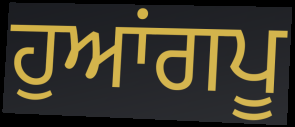
ਹੁਆਂਗਪੂ